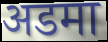
अडमा